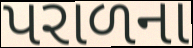
પરાળના